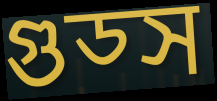
গুড্স